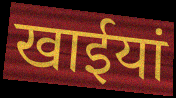
खाईयां